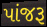
પાંજરૂ